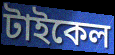
টাইকেল